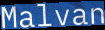
Malvan